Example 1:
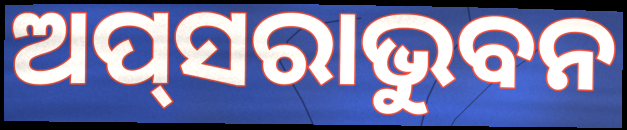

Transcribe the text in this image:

ଅପ୍‍ସରାଭୁବନ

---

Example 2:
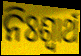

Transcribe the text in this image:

ନିଃଶ୍ୱାର୍ଥ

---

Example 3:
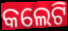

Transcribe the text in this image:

କଲେଟି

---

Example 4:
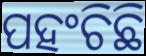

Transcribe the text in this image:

ପହଂଚିଛି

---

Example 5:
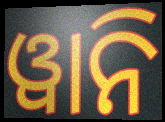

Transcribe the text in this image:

ୱାନି